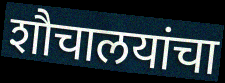
शौचालयांचा